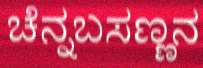
ಚೆನ್ನಬಸಣ್ಣನ